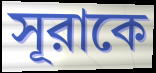
সূরাকে